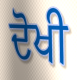
ਦੋਖੀ